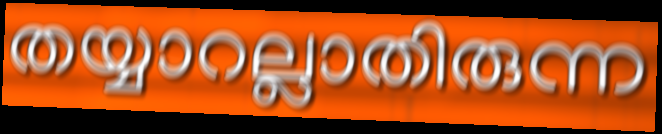
തയ്യാറല്ലാതിരുന്ന